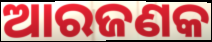
ଆରଜଣକ